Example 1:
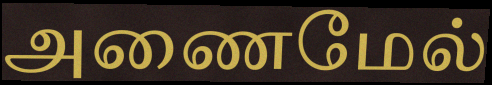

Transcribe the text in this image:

அணைமேல்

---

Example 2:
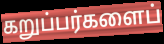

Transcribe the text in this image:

கறுப்பர்களைப்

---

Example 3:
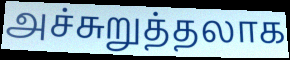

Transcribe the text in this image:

அச்சுறுத்தலாக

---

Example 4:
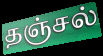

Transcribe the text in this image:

தஞ்சல்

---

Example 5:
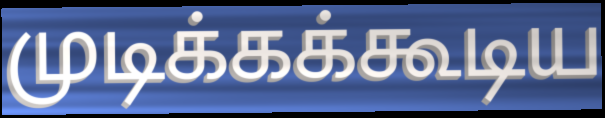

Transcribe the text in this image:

முடிக்கக்கூடிய